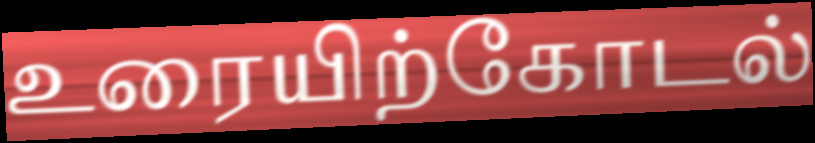
உரையிற்கோடல்